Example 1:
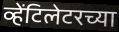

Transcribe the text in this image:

व्हेंटिलेटरच्या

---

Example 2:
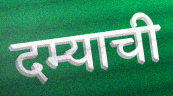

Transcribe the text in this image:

दम्याची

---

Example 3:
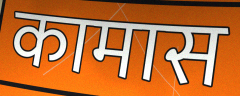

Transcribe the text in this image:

कामास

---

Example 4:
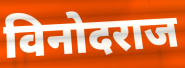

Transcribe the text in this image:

विनोदराज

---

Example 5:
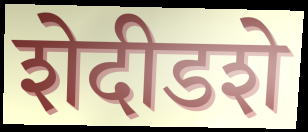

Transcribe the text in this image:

शेदीडशे